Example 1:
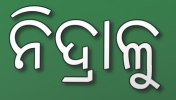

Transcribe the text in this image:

ନିଦ୍ରାଳୁ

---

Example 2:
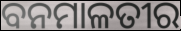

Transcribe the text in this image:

ବନମାଳତୀର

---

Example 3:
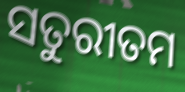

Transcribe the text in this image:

ସତୁରୀତମ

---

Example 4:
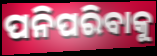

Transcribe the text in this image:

ପନିପରିବାକୁ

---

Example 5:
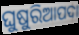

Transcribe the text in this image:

ଘୁଷୁରିଆପଦା